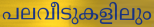
പലവീടുകളിലും